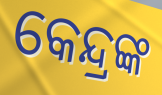
କେନ୍ଦ୍ରଙ୍କ